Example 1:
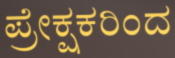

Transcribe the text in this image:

ಪ್ರೇಕ್ಷಕರಿಂದ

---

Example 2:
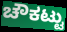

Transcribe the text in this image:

ಚೌಕಟ್ಟು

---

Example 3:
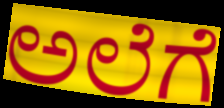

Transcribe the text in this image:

ಅಲೆಗೆ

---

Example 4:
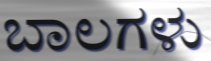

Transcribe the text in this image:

ಬಾಲಗಳು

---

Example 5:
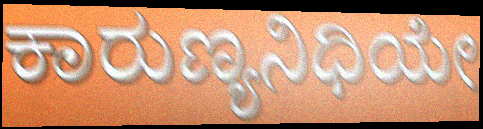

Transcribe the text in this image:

ಕಾರುಣ್ಯನಿಧಿಯೇ